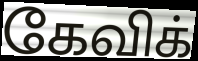
கேவிக்